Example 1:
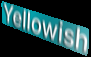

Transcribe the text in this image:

Yellowish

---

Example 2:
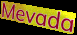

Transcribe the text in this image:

Mevada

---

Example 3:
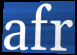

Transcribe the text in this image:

afr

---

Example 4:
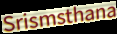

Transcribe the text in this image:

Srismsthana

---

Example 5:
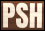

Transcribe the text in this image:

PSH